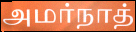
அமர்நாத்